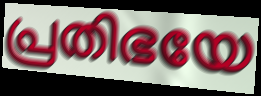
പ്രതിഭയേ